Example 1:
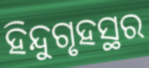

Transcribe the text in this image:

ହିନ୍ଦୁଗୃହସ୍ଥର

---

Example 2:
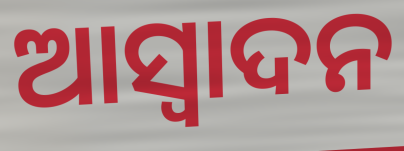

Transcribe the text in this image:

ଆସ୍ୱାଦନ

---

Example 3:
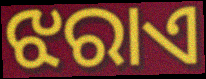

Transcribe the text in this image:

ଝରାଏ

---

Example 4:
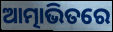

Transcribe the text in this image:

ଆତ୍ମାଭିତରେ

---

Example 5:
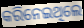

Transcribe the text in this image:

କରିନେଇଥିଲେ